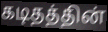
கடிதத்தின்